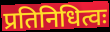
प्रतिनिधित्वः